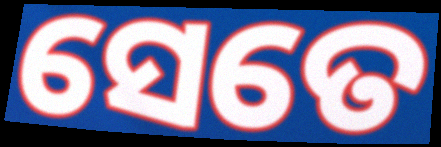
ସେତେ